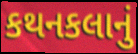
કથનકલાનું